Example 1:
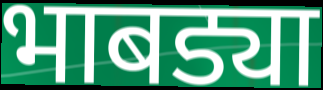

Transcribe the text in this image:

भाबड्या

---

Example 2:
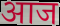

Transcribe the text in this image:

आज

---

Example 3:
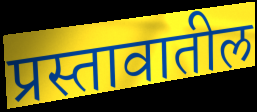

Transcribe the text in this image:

प्रस्तावातील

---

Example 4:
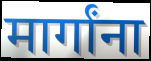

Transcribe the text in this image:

मार्गांना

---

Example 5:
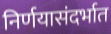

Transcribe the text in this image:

निर्णयासंदर्भात